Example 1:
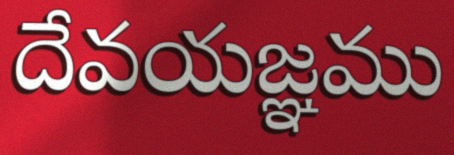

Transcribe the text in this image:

దేవయజ్ఞము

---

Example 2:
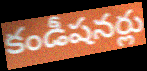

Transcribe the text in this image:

కండీషనర్లు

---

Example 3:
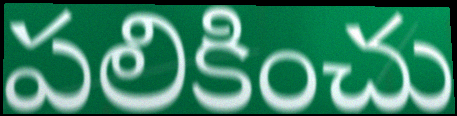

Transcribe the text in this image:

పలికించు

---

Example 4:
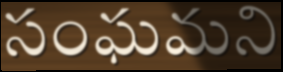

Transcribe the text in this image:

సంఘమని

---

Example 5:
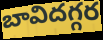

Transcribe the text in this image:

బావిదగ్గర